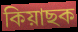
কিয়াছক